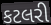
કટલરી